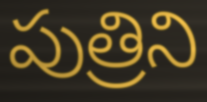
పుత్రిని